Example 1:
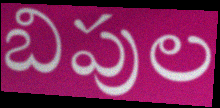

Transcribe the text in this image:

బిపుల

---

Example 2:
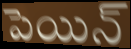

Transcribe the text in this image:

పెయిన్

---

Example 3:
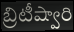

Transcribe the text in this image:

బ్రిటీష్వారి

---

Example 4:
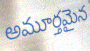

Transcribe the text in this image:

అమూర్తమైన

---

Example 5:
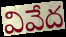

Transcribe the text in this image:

వివేద